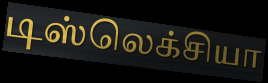
டிஸ்லெக்சியா